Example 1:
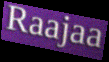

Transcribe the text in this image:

Raajaa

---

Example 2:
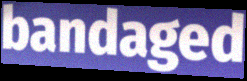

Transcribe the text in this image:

bandaged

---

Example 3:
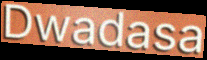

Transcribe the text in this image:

Dwadasa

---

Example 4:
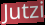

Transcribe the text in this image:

Jutzi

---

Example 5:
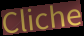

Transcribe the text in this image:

Cliche